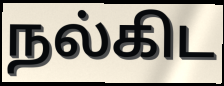
நல்கிட